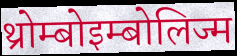
थ्रोम्बोइम्बोलिज्म